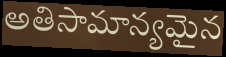
అతిసామాన్యమైన